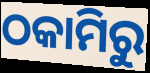
ଠକାମିରୁ